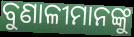
ବୁଣାଳୀମାନଙ୍କୁ